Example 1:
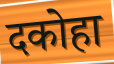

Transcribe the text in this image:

दकोहा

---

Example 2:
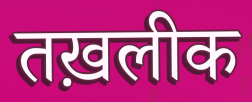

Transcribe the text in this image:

तख़लीक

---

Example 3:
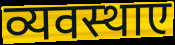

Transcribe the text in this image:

व्यवस्थाए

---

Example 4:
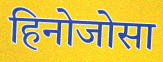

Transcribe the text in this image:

हिनोजोसा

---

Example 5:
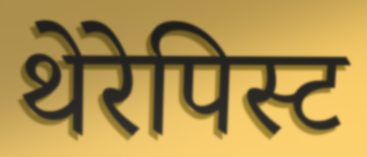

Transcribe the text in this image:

थेरेपिस्ट